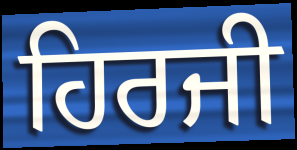
ਹਿਰਜੀ